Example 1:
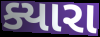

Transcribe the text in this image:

ક્યારા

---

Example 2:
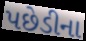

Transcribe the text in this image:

પછેડીના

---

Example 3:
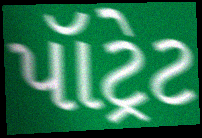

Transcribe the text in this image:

પૉટ્રેટ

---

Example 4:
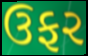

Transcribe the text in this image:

ઉફર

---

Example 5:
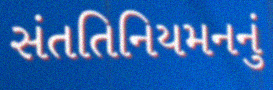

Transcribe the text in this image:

સંતતિનિયમનનું